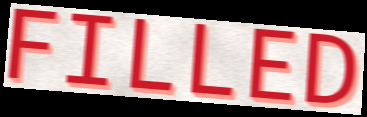
FILLED